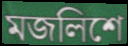
মজলিশে